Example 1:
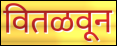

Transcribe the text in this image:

वितळवून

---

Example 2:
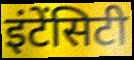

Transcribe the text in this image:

इंटेंसिटी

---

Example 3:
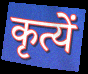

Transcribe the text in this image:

कृत्यें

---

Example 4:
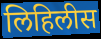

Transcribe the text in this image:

लिहिलीस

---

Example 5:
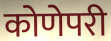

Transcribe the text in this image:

कोणेपरी